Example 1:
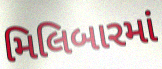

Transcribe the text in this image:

મિલિબારમાં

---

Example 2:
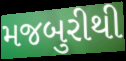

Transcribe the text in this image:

મજબુરીથી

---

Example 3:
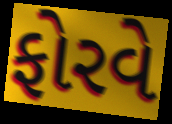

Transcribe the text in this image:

ફોરવે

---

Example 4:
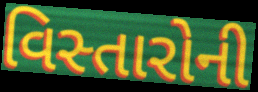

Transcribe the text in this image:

વિસ્તારોની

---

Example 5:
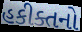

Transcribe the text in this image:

હકીક્તનો